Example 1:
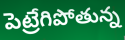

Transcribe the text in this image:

పెట్రేగిపోతున్న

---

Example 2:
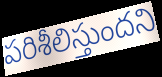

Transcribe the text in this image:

పరిశీలిస్తుందని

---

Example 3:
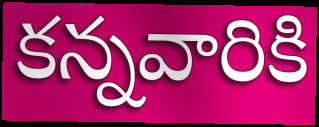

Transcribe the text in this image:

కన్నవారికి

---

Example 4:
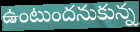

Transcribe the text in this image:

ఉంటుందనుకున్న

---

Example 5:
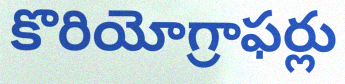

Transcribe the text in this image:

కొరియోగ్రాఫర్లు